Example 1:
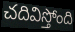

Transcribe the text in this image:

చదివిస్తోంది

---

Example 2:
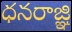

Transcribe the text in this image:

ధనరాజ్ఞి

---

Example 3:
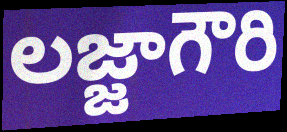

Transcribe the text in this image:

లజ్జాగౌరి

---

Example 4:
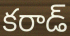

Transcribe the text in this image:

కరాడ్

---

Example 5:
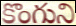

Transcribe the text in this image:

కొంగుని